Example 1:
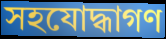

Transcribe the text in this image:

সহযোদ্ধাগণ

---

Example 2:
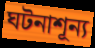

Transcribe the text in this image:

ঘটনাশূন্য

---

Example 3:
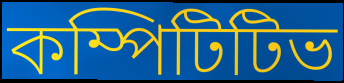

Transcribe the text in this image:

কম্পিটিটিভ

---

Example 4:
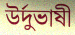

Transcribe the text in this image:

উর্দুভাষী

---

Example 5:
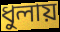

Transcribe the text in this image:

ধুলায়